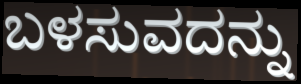
ಬಳಸುವದನ್ನು